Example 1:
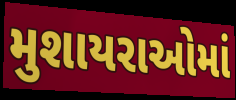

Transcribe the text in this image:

મુશાયરાઓમાં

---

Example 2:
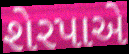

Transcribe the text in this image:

શેરપાએ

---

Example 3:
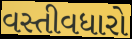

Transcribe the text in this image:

વસ્તીવધારો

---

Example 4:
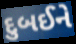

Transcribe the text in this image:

દુબઈને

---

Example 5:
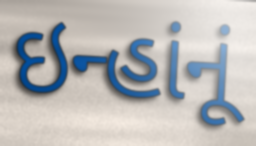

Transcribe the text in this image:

ઇન્હાંનૂં